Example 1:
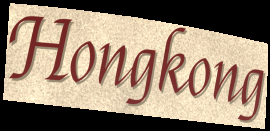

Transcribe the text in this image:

Hongkong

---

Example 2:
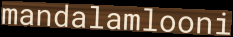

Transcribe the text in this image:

mandalamlooni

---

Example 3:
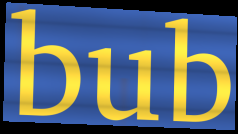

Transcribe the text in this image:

bub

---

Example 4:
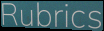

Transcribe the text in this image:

Rubrics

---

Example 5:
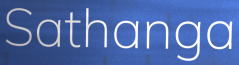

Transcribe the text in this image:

Sathanga